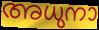
അധുനാ